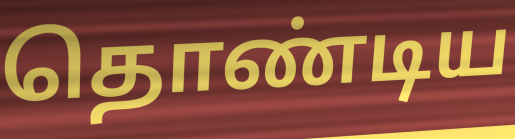
தொண்டிய